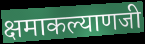
क्षमाकल्याणजी